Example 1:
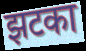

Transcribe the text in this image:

झटका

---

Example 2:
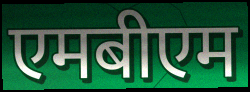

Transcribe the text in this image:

एमबीएम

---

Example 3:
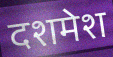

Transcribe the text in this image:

दशमेश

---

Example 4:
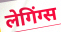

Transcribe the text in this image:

लेगिंग्स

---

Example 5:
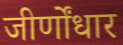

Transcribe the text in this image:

जीर्णोंधार